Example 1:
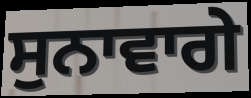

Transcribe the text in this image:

ਸੁਨਾਵਾਗੇ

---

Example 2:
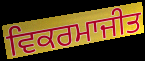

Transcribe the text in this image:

ਵਿਕਰਮਾਜੀਤ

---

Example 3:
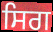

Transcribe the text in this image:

ਸਿਗ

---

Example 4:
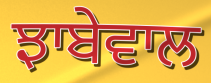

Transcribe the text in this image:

ਝਾਬੇਵਾਲ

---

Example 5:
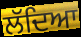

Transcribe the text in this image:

ਲੱਦਿਆ